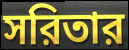
সরিতার